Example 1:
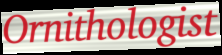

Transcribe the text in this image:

Ornithologist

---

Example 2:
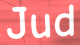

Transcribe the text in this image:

Jud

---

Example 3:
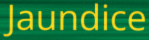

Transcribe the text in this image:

Jaundice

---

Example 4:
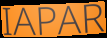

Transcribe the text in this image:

IAPAR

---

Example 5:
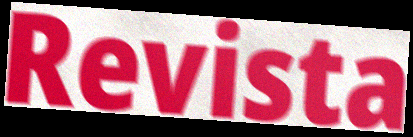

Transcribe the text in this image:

Revista